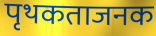
पृथकताजनक